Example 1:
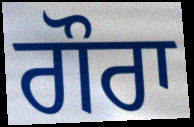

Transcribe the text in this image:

ਗੌਰਾ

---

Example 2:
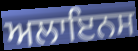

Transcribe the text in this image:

ਅਲਾਇਨਸ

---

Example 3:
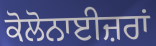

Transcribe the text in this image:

ਕੋਲੋਨਾਈਜ਼ਰਾਂ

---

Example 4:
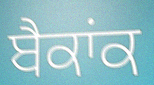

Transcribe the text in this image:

ਬੈਕਾਂਕ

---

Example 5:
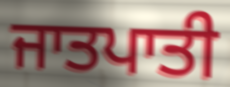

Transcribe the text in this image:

ਜਾਤਪਾਤੀ